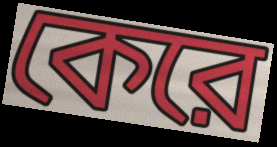
কেরে